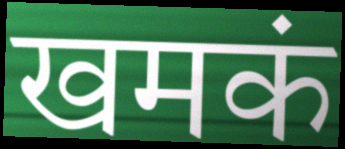
खमकं